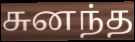
சுனந்த